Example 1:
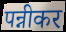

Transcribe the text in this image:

पन्नीकर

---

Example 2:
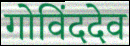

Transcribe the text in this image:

गोविंददेव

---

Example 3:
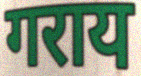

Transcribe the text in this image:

गराय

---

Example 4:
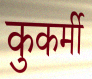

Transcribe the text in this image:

कुकर्मी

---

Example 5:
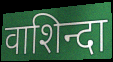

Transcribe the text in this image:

वाशिन्दा